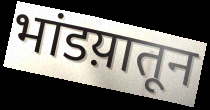
भांडय़ातून